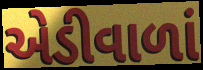
એડીવાળાં